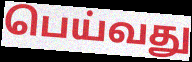
பெய்வது